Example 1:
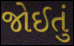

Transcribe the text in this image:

જોઈતું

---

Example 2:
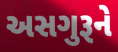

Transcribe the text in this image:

અસગુરૂને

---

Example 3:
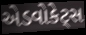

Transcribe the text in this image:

એડવોકેટ્સ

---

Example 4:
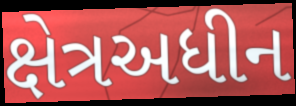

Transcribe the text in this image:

ક્ષેત્રઅધીન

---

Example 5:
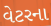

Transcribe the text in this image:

વેટરના